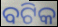
ବଟିକ